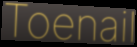
Toenail